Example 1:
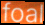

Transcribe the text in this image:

foal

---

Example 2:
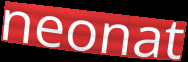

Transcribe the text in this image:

neonat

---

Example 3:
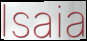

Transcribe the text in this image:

Isaia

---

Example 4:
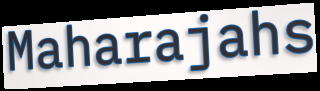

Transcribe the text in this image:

Maharajahs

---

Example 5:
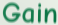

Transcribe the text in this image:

Gain